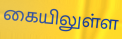
கையிலுள்ள